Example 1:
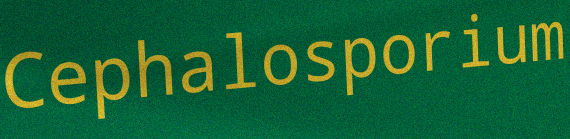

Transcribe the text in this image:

Cephalosporium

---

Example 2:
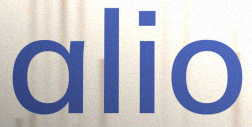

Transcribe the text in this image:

alio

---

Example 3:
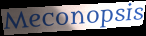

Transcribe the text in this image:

Meconopsis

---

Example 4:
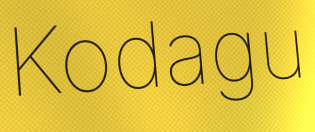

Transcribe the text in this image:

Kodagu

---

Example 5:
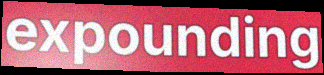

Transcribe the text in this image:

expounding